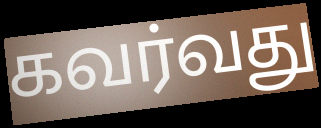
கவர்வது